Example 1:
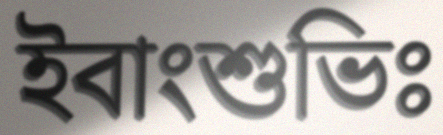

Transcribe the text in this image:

ইবাংশুভিঃ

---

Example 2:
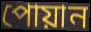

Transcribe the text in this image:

পোয়ান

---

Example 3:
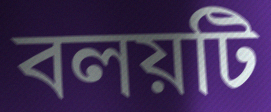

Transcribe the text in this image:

বলয়টি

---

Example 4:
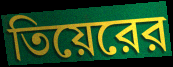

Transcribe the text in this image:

তিয়েরের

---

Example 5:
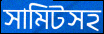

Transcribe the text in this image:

সামিটসহ